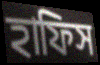
হাফিস